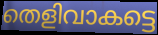
തെളിവാകട്ടെ